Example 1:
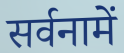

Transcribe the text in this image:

सर्वनामें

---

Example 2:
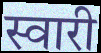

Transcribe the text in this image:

स्वारी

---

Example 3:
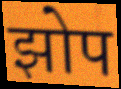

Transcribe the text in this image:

झोप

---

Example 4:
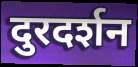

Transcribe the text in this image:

दुरदर्शन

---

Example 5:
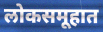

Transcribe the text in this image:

लोकसमूहात